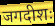
जगदीशः